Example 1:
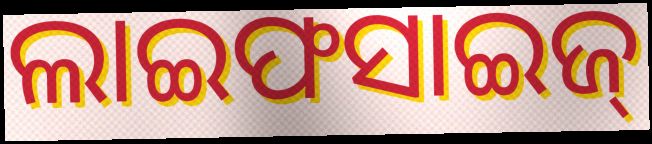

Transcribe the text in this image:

ଲାଇଫସାଇଜ୍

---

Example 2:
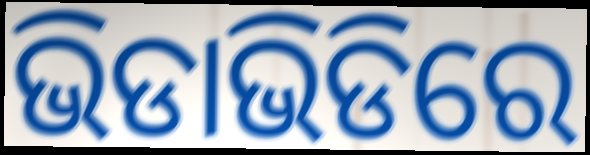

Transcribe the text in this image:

ଭିଡାଭିଡିରେ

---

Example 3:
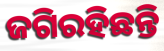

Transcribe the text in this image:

ଜଗିରହିଛନ୍ତି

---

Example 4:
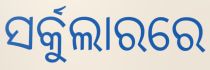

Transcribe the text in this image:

ସର୍କୁଲାରରେ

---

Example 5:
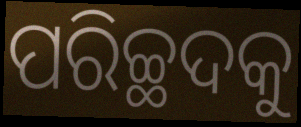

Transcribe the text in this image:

ପରିଚ୍ଛଦକୁ